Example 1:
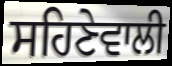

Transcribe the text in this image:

ਸਹਿਣੇਵਾਲੀ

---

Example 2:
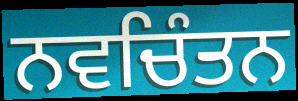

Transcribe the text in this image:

ਨਵਚਿੰਤਨ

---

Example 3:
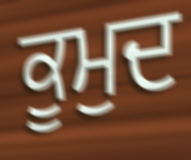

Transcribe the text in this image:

ਕੂਮੁਦ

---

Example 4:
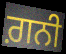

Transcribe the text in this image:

ਗ਼ਨੀ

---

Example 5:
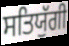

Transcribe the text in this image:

ਸਤਿਯੁੱਗੀ